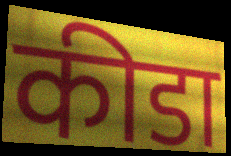
कीडा